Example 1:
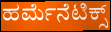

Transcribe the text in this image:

ಹರ್ಮೆನೆಟಿಕ್ಸ್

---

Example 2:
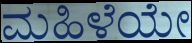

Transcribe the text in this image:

ಮಹಿಳೆಯೇ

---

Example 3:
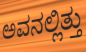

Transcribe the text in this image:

ಅವನಲ್ಲಿತ್ತು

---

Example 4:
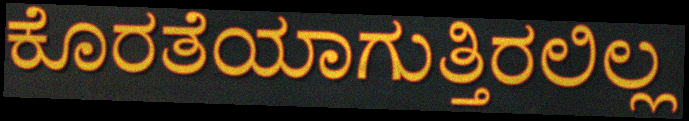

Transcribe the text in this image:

ಕೊರತೆಯಾಗುತ್ತಿರಲಿಲ್ಲ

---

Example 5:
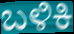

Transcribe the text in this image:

ಬಳಿಕಿ